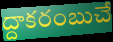
ద్దాకరంబుచే